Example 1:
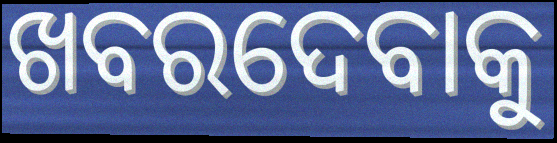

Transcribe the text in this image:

ଖବରଦେବାକୁ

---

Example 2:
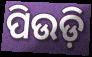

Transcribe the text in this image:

ପିଉଡ଼ି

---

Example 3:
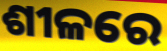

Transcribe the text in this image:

ଶୀଳରେ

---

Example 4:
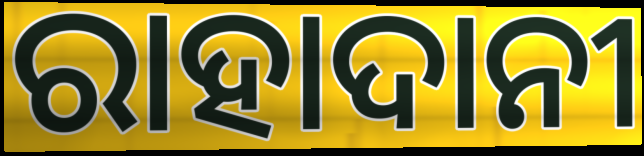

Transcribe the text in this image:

ରାହାଦାନୀ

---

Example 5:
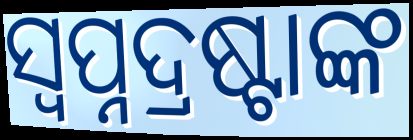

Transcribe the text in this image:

ସ୍ୱପ୍ନଦ୍ରଷ୍ଟାଙ୍କ